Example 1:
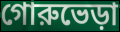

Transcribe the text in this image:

গোরুভেড়া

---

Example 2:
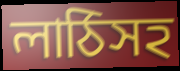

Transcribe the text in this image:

লাঠিসহ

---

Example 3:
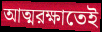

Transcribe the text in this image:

আত্মরক্ষাতেই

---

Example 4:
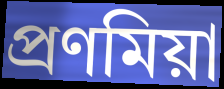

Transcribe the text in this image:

প্রণমিয়া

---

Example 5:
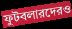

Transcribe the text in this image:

ফুটবলারদেরও